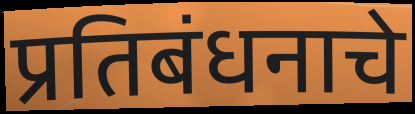
प्रतिबंधनाचे